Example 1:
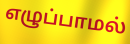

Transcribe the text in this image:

எழுப்பாமல்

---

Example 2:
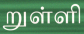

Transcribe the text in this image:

றுள்ளி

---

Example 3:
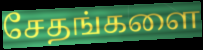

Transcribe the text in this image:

சேதங்களை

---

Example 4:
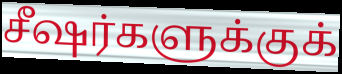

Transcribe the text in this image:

சீஷர்களுக்குக்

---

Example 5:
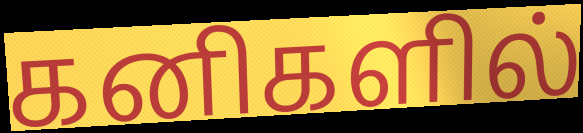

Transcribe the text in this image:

கனிகளில்